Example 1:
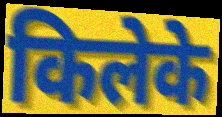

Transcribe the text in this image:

किलेके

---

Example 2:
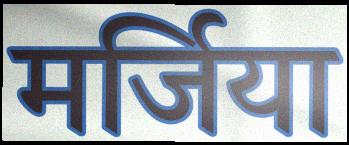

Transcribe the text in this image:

मर्जिया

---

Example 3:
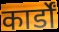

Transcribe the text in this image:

कार्डों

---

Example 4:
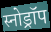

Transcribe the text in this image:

स्नोड्रॉप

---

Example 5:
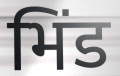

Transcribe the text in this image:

भिंड